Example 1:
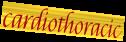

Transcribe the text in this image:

cardiothoracic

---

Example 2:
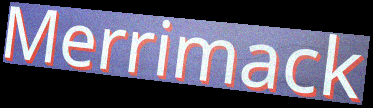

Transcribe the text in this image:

Merrimack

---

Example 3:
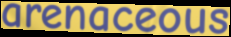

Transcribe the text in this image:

arenaceous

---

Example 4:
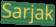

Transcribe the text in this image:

Sarjak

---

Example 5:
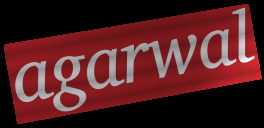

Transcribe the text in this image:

agarwal